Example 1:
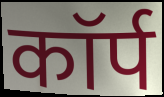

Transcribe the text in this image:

कॉर्प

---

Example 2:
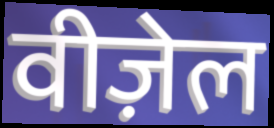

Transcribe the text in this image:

वीज़ेल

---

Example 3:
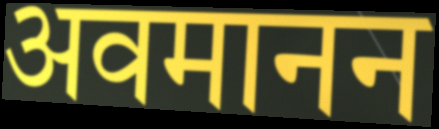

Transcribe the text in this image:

अवमानन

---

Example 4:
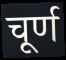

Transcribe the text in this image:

चूर्ण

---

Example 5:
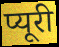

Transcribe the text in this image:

प्यूरी